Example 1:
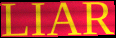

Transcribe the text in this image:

LIAR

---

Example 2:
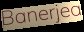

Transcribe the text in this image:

Banerjea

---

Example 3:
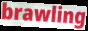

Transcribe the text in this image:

brawling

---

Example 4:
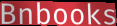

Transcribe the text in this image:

Bnbooks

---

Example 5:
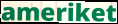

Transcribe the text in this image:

ameriket